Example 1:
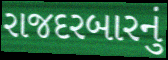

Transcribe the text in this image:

રાજદરબારનું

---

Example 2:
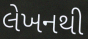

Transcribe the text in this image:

લેખનથી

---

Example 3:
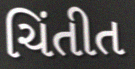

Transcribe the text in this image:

ચિંતીત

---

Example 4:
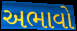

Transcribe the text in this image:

અભાવો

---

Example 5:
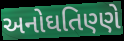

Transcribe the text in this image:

અનોઘતિણ્ણે